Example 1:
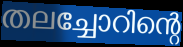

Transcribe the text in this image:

തലച്ചോറിന്റെ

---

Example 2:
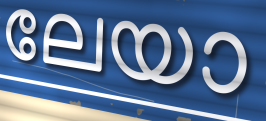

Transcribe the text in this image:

ലേയാ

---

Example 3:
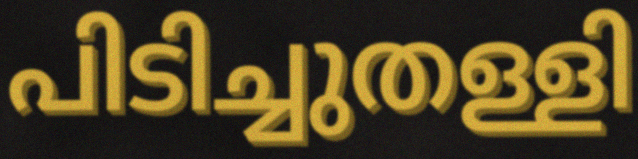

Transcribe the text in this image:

പിടിച്ചുതള്ളി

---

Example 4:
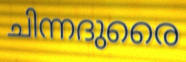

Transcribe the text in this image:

ചിന്നദുരൈ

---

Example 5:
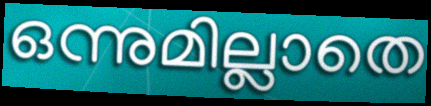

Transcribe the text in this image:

ഒന്നുമില്ലാതെ